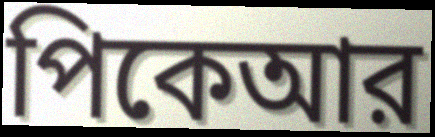
পিকেআর